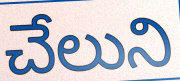
చేలుని